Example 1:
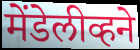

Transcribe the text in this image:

मेंडेलीव्हने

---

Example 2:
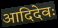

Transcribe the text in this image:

आदिदेवः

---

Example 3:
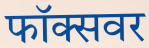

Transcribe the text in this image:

फॉक्सवर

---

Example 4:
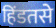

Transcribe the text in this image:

हिंडतसे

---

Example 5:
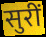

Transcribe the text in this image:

सुरीं